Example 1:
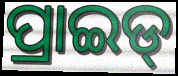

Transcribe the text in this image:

ପ୍ରାଇଡ୍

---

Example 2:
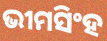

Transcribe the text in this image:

ଭୀମସିଂହ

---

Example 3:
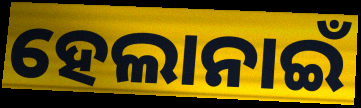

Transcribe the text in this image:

ହେଲାନାଇଁ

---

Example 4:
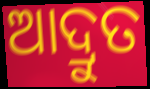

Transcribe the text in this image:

ଆଦ୍ରୁତ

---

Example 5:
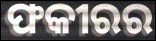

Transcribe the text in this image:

ଫକୀରର